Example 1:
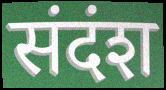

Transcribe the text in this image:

संदंश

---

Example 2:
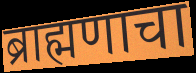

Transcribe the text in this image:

ब्राह्मणाचा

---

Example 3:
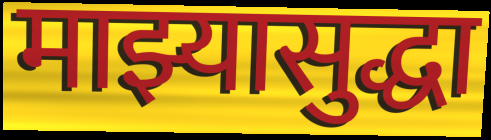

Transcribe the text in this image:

माझ्यासुद्धा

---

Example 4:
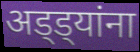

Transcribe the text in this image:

अड्ड्यांना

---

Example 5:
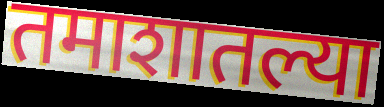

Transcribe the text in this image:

तमाशातल्या